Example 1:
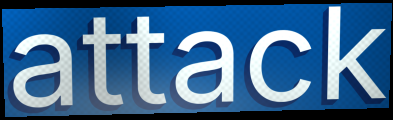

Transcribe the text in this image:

attack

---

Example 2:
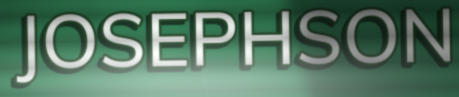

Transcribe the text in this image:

JOSEPHSON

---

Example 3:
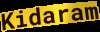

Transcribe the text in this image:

Kidaram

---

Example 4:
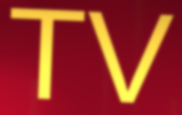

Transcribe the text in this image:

TV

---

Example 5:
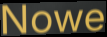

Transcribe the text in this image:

Nowe